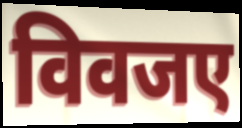
विवजए